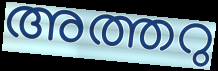
അത്തറു